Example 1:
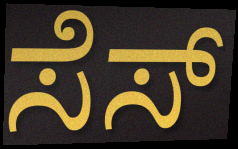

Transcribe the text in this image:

ಸೆಸ್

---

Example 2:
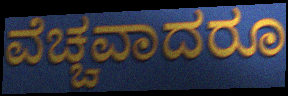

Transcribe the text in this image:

ವೆಚ್ಚವಾದರೂ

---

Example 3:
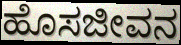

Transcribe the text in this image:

ಹೊಸಜೀವನ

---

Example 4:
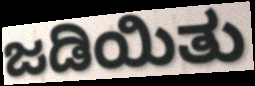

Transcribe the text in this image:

ಜಡಿಯಿತು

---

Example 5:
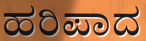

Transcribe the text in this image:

ಹರಿಪಾದ